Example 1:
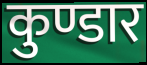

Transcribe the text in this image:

कुण्डार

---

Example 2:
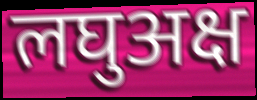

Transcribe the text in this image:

लघुअक्ष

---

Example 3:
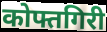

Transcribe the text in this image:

कोफ्तगिरी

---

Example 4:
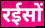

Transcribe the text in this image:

रईसों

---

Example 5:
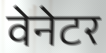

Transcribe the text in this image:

वेनेटर